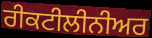
ਰੀਕਟੀਲੀਨੀਅਰ